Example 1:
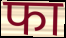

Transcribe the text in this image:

फा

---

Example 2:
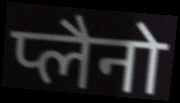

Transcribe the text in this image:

प्लैनो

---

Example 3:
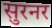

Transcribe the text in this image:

सुरनर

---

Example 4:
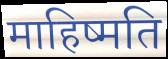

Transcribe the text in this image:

माहिष्मति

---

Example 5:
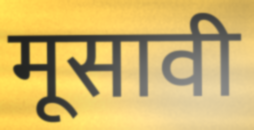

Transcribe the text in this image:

मूसावी